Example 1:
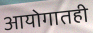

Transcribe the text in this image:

आयोगातही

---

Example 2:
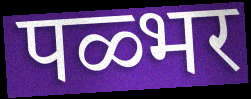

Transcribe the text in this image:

पळ्भर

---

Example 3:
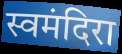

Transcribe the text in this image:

स्वमंदिरा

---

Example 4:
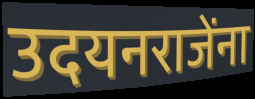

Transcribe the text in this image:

उदयनराजेंना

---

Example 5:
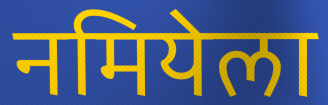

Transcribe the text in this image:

नमियेला